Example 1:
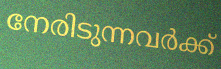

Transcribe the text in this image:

നേരിടുന്നവർക്ക്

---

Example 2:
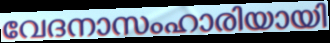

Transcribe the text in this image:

വേദനാസംഹാരിയായി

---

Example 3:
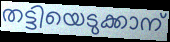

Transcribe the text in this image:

തട്ടിയെടുക്കാന്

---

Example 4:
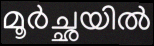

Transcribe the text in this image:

മൂർച്ഛയിൽ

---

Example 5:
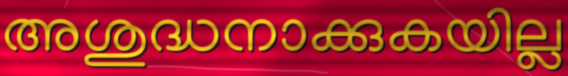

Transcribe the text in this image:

അശുദ്ധനാക്കുകയില്ല